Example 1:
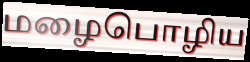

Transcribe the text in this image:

மழைபொழிய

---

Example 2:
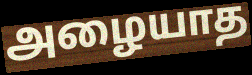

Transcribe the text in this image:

அழையாத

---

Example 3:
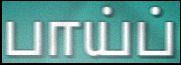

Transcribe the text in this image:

பாய்ப்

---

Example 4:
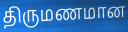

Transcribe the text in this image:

திருமணமான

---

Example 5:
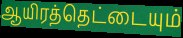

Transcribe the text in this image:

ஆயிரத்தெட்டையும்